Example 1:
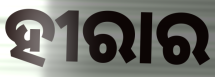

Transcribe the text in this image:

ହୀରାର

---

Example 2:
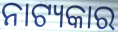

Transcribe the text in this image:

ନାଟ୍ୟକାର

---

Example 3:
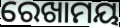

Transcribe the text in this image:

ରେଖାମୟ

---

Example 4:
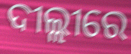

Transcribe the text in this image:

ଦୀଲ୍ଲୀରେ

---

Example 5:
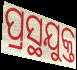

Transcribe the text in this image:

ପ୍ରସ୍ଥଯୁକ୍ତ